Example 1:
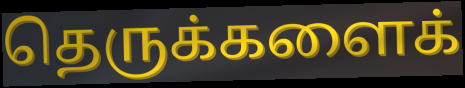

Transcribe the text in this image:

தெருக்களைக்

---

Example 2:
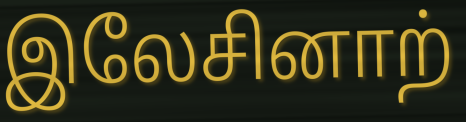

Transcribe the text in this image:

இலேசினாற்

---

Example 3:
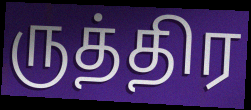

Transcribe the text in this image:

ருத்திர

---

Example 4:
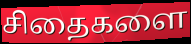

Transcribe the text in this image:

சிதைகளை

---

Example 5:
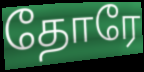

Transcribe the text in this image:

தோரே